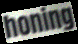
honing